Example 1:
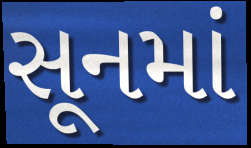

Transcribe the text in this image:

સૂનમાં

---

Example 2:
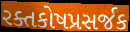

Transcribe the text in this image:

રક્તકોષપ્રસર્જક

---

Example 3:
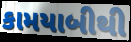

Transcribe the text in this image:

કામયાબીથી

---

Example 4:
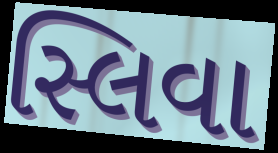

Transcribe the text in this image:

સ્લિવા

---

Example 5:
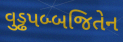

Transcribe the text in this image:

વુડ્ઢપબ્બજિતેન